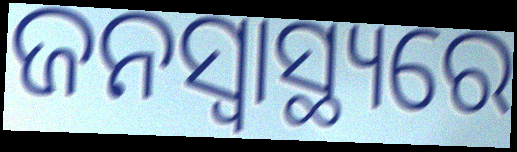
ଜନସ୍ବାସ୍ଥ୍ୟରେ